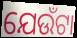
ଯେଉଁଟା